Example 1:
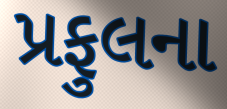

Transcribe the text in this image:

પ્રફુલના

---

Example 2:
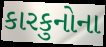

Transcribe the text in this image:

કારકુનોના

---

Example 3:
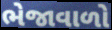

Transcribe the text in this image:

ભેજાવાળો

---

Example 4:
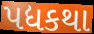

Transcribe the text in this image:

પદ્યકથા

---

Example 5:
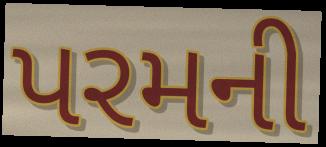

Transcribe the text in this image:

પરમની